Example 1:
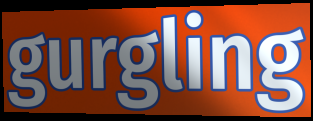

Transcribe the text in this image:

gurgling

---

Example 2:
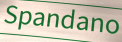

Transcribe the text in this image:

Spandano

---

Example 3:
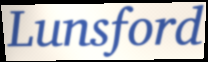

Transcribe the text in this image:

Lunsford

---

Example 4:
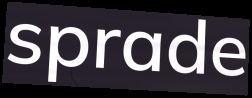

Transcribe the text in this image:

sprade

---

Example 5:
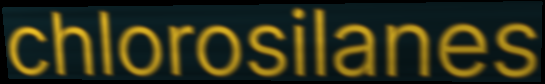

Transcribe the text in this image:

chlorosilanes